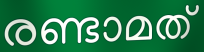
രണ്ടാമത്